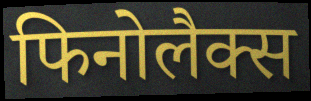
फिनोलैक्स